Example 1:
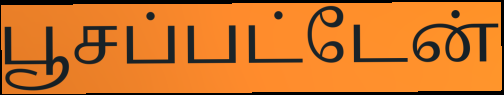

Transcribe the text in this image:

பூசப்பட்டேன்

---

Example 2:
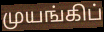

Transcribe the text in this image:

முயங்கிப்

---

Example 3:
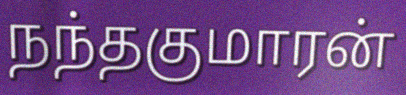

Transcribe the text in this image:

நந்தகுமாரன்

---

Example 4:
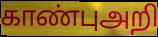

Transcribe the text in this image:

காண்புஅறி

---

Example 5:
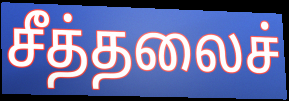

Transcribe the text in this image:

சீத்தலைச்